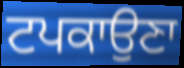
ਟਪਕਾਉਣਾ